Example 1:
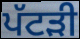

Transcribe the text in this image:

ਪੱਟੜੀ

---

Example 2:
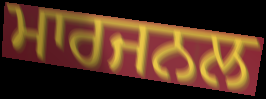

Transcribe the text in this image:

ਮਾਰਜਨਲ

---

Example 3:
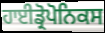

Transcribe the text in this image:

ਹਾਈਡ੍ਰੋਪੋਨਿਕਸ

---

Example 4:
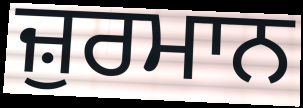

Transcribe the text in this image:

ਜ਼ੁਰਮਾਨ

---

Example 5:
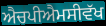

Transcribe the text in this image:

ਐਚਪੀਐਮਸੀਵੱਖ